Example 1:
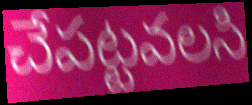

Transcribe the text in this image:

చేపట్టవలసి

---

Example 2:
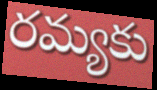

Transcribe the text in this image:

రమ్యకు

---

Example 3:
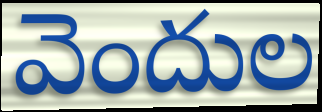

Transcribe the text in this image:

వెందుల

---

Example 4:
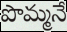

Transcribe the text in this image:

పొమ్మనే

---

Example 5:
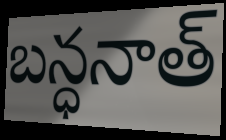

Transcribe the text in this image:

బన్ధనాత్